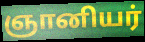
ஞானியர்